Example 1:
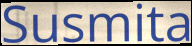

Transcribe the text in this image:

Susmita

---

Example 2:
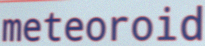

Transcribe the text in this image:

meteoroid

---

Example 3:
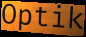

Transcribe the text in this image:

Optik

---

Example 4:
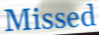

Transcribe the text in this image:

Missed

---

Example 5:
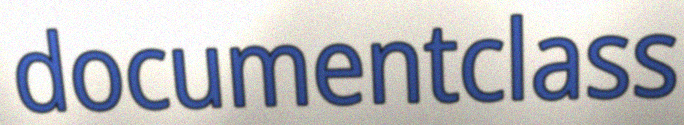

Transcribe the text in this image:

documentclass